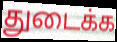
துடைக்க